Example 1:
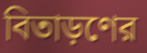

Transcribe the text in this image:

বিতাড়ণের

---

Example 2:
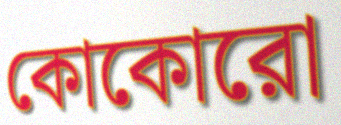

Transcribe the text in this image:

কোকোরো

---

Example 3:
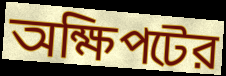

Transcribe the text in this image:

অক্ষিপটের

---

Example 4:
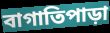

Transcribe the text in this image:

বাগাতিপাড়া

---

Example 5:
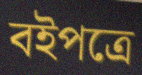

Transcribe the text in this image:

বইপত্রে